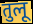
तुलू